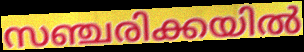
സഞ്ചരിക്കയിൽ